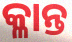
କ୍ଳାନ୍ତ